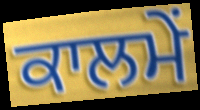
ਕਾਲਮੇਂ